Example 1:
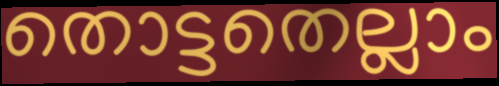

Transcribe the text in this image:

തൊട്ടതെല്ലാം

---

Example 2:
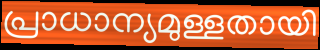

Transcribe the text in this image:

പ്രാധാന്യമുള്ളതായി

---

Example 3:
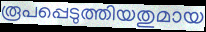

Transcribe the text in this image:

രൂപപ്പെടുത്തിയതുമായ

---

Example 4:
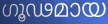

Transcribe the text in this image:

ഗൂഢമായ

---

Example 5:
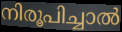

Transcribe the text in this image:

നിരൂപിച്ചാൽ